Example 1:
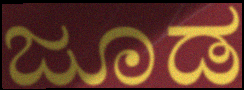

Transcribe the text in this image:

ಜೂಡ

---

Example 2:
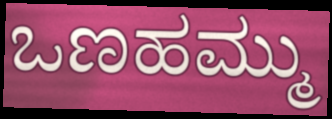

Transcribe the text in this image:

ಒಣಹಮ್ಮು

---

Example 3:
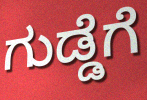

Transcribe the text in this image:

ಗುಡ್ಡೆಗೆ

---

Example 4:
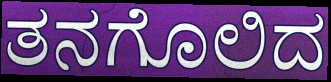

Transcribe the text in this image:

ತನಗೊಲಿದ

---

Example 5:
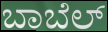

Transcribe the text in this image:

ಬಾಬೆಲ್